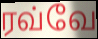
ரவ்வே